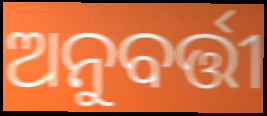
ଅନୁବର୍ତ୍ତୀ